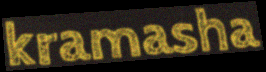
kramasha